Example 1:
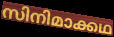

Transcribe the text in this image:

സിനിമാക്കഥ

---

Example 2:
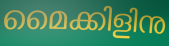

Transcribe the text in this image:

മൈക്കിളിനു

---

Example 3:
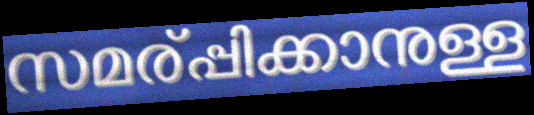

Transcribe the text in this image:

സമര്പ്പിക്കാനുള്ള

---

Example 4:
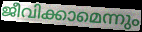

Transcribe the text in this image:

ജീവിക്കാമെന്നും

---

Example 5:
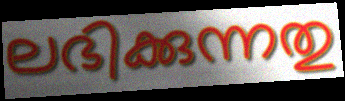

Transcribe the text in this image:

ലഭിക്കുന്നതു